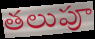
తలుపూ